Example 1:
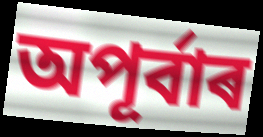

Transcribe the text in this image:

অপূৰ্বাৰ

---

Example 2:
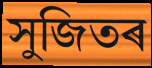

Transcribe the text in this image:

সুজিতৰ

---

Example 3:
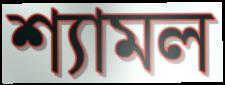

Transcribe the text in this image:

শ্যামল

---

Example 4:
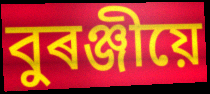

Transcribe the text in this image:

বুৰঞ্জীয়ে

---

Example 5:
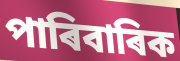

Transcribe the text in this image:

পাৰিবাৰিক